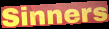
Sinners